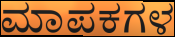
ಮಾಪಕಗಳ